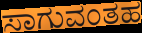
ಸಾಗುವಂತಹ